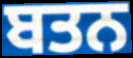
ਬਤਨ